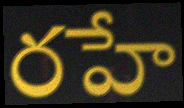
రహే